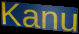
Kanu